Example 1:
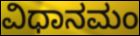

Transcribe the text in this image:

ವಿಧಾನಮಂ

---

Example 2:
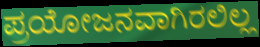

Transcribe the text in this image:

ಪ್ರಯೋಜನವಾಗಿರಲಿಲ್ಲ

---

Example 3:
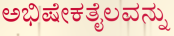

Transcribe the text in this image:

ಅಭಿಷೇಕತೈಲವನ್ನು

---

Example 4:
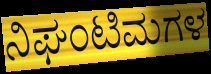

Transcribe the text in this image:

ನಿಘಂಟಿಮಗಳ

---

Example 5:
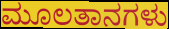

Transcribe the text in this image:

ಮೂಲತಾನಗಳು